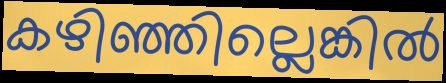
കഴിഞ്ഞില്ലെങ്കിൽ